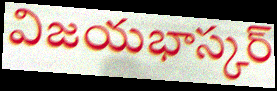
విజయభాస్కర్